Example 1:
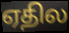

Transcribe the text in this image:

ஏதில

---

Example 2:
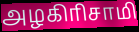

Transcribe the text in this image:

அழகிரிசாமி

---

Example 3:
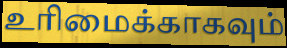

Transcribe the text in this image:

உரிமைக்காகவும்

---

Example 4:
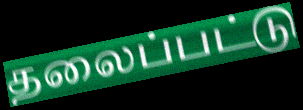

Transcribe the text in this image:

தலைப்பட்டு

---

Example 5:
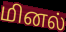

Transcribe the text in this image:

மினல்